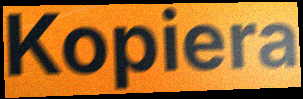
Kopiera